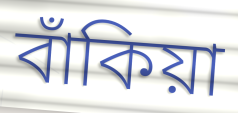
বাঁকিয়া